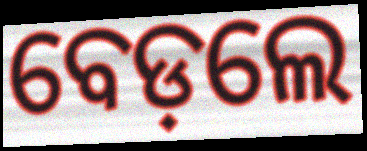
ବେଡ଼ଲେ